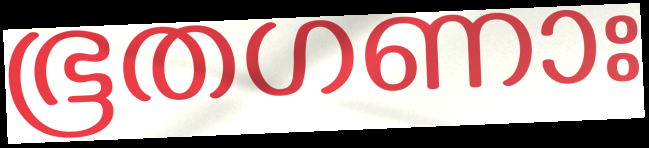
ഭൂതഗണാഃ